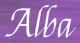
Alba